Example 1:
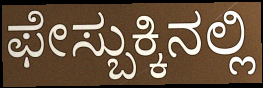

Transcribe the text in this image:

ಫೇಸ್ಬುಕ್ಕಿನಲ್ಲಿ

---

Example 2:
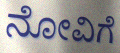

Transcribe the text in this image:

ನೋವಿಗೆ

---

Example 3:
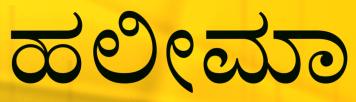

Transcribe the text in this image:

ಹಲೀಮಾ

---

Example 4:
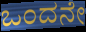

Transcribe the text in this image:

ಒಂದನೇ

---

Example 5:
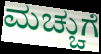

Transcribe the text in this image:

ಮಚ್ಚುಗೆ